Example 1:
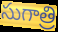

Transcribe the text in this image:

సుగాత్రి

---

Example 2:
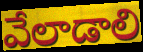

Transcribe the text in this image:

వేలాడాలి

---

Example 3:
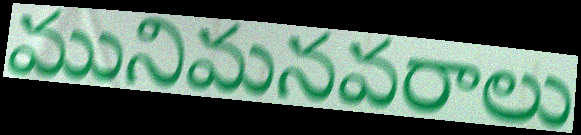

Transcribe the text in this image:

మునిమనవరాలు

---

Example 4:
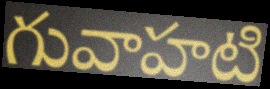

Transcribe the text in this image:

గువాహటి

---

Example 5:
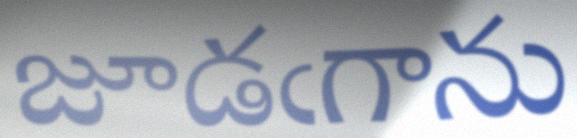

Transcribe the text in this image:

జూడఁగాను